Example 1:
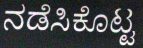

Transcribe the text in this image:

ನಡೆಸಿಕೊಟ್ಟ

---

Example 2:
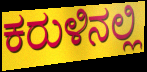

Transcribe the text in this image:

ಕರುಳಿನಲ್ಲಿ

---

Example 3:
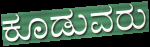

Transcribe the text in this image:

ಕೂಡುವರು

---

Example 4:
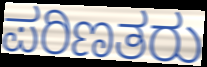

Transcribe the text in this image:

ಪರಿಣತರು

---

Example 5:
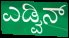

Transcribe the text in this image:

ಎಡ್ವಿನ್